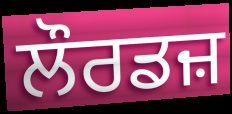
ਲੌਰਡਜ਼